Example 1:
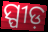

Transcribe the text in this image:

ସ୍ପୀଡ଼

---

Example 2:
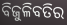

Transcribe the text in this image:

ବିଜୁଳିବତିର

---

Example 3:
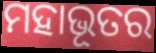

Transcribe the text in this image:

ମହାଭୂତର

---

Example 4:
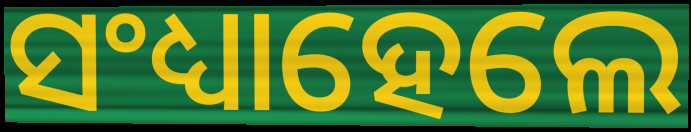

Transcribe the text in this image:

ସଂଧ୍ୟାହେଲେ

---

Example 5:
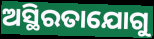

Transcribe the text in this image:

ଅସ୍ଥିରତାଯୋଗୁ